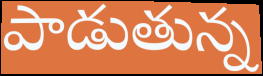
పాడుతున్న